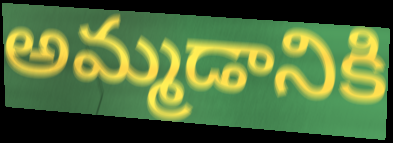
అమ్మడానికి